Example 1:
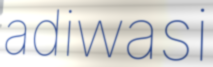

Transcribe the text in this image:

adiwasi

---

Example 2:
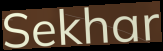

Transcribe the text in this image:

Sekhar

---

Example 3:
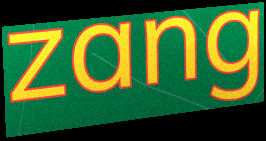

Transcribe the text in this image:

zang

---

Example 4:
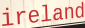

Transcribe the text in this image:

ireland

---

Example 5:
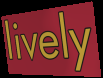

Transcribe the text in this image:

lively